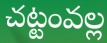
చట్టంవల్ల